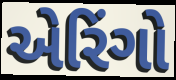
એરિંગો